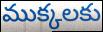
ముక్కలకు